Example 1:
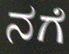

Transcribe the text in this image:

ನಗೆ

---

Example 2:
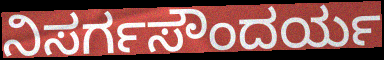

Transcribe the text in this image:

ನಿಸರ್ಗಸೌಂದರ್ಯ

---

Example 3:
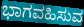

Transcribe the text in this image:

ಭಾಗವಹಿಸುವ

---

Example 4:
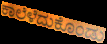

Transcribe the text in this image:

ಕಾಲೆಳೆದುಕೊಂಡು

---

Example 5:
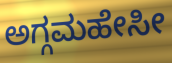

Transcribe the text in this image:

ಅಗ್ಗಮಹೇಸೀ